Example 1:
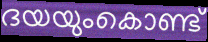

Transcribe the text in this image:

ദയയുംകൊണ്ട്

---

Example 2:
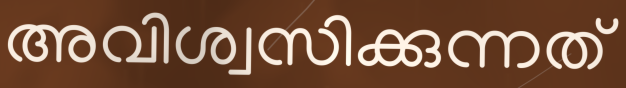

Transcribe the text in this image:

അവിശ്വസിക്കുന്നത്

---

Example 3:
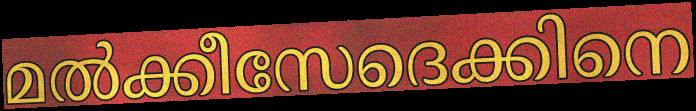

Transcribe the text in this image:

മൽക്കീസേദെക്കിനെ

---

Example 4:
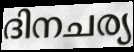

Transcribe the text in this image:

ദിനചര്യ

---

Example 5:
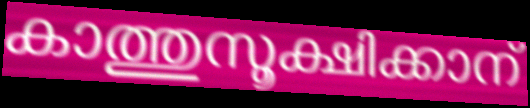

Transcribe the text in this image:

കാത്തുസൂക്ഷിക്കാന്